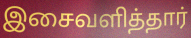
இசைவளித்தார்